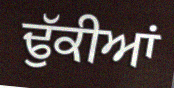
ਢੁੱਕੀਆਂ